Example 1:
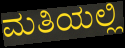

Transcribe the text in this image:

ಮತಿಯಲ್ಲಿ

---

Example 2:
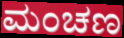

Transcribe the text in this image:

ಮಂಚಣ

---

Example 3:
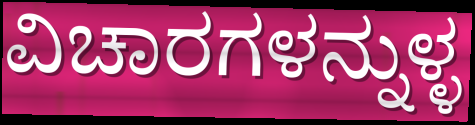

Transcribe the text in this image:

ವಿಚಾರಗಳನ್ನುಳ್ಳ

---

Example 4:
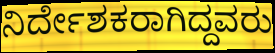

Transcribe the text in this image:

ನಿರ್ದೇಶಕರಾಗಿದ್ದವರು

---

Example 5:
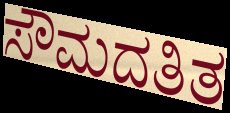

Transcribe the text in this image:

ಸೌಮದತಿತ